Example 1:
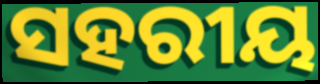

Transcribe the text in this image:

ସହରୀୟ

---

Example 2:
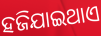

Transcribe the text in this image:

ହଜିଯାଇଥାଏ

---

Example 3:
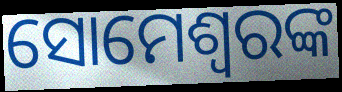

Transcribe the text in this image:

ସୋମେଶ୍ୱରଙ୍କ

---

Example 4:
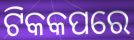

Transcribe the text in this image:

ଟିକକପରେ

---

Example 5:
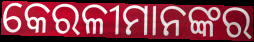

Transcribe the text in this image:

କେରଳୀମାନଙ୍କର